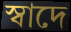
স্বাদে